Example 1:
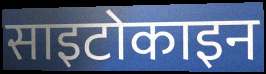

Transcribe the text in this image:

साइटोकाइन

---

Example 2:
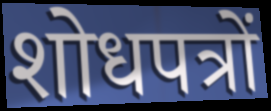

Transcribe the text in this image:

शोधपत्रों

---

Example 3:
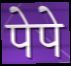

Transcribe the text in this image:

पेपे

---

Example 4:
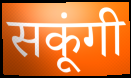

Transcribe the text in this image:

सकूंगी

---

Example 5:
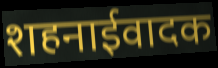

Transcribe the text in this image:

शहनाईवादक